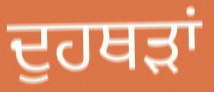
ਦੁਹਥੜਾਂ